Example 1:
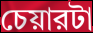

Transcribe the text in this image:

চেয়ারটা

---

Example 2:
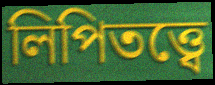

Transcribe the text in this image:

লিপিতত্ত্বে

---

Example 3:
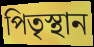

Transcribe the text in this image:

পিতৃস্থান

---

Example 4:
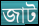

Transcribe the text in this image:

জাট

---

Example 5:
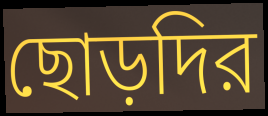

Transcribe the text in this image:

ছোড়দির